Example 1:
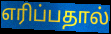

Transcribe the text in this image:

எரிப்பதால்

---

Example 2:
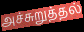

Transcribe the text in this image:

அச்சுறுத்தல்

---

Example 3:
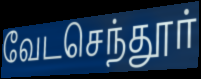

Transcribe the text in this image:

வேடசெந்தூர்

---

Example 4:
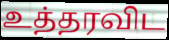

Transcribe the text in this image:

உத்தரவிட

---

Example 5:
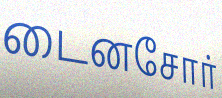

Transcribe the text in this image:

டைனசோர்